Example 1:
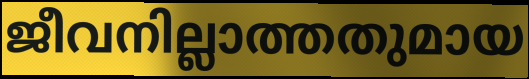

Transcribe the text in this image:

ജീവനില്ലാത്തതുമായ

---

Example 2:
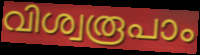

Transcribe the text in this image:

വിശ്വരൂപാം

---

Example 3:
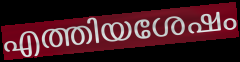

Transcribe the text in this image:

എത്തിയശേഷം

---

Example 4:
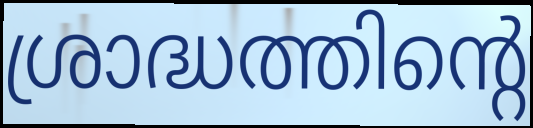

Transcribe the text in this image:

ശ്രാദ്ധത്തിന്റെ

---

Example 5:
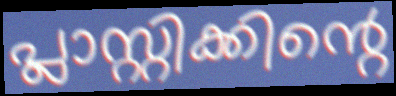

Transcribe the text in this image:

പ്ലാസ്റ്റിക്കിന്റെ